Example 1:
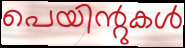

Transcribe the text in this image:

പെയിന്റുകൾ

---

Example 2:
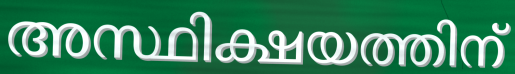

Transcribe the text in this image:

അസ്ഥിക്ഷയത്തിന്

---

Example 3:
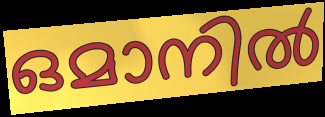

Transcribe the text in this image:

ഒമാനിൽ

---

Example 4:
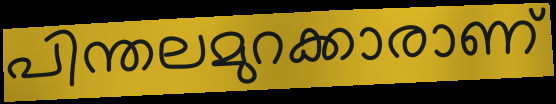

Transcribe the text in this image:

പിന്തലമുറക്കാരാണ്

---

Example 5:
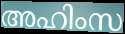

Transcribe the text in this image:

അഹിംസ